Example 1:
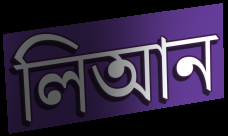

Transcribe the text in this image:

লিআন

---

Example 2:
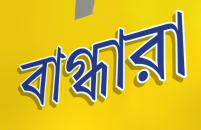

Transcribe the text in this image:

বাগ্ধারা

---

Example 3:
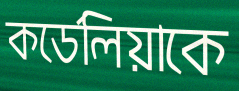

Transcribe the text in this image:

কর্ডেলিয়াকে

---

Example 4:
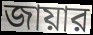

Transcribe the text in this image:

জায়ার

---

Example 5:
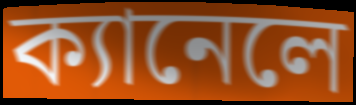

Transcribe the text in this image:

ক্যানেলে